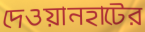
দেওয়ানহাটের